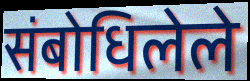
संबोधिलेले